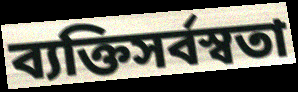
ব্যক্তিসর্বস্বতা